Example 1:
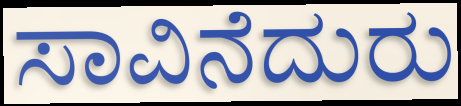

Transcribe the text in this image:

ಸಾವಿನೆದುರು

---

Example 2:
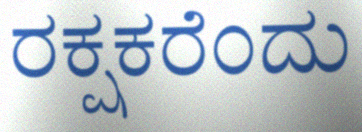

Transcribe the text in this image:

ರಕ್ಷಕರೆಂದು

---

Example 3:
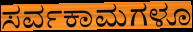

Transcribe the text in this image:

ಸರ್ವಕಾಮಗಳೂ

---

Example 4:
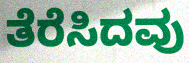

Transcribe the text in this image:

ತೆರೆಸಿದವು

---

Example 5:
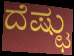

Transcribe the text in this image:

ದೆಷ್ಟು